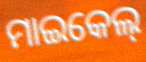
ମାଇକେଲ୍